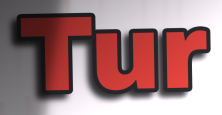
Tur